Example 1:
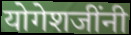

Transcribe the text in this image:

योगेशजींनी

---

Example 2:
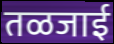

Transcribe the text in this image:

तळजाई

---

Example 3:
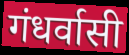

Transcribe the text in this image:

गंधर्वासी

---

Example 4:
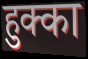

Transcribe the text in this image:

हुक्का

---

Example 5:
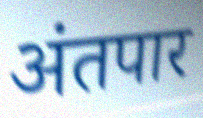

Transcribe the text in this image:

अंतपार